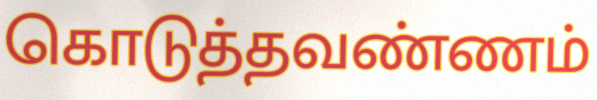
கொடுத்தவண்ணம்